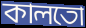
কালতো